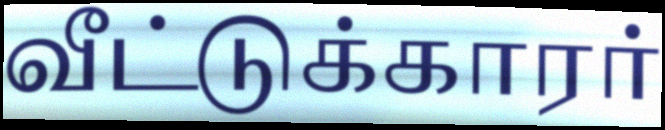
வீட்டுக்காரர்